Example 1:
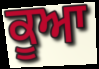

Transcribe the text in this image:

ਕੂਆ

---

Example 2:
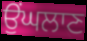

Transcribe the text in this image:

ਉਂਘਲਾਣ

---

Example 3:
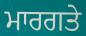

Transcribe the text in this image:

ਮਾਰਗਤੇ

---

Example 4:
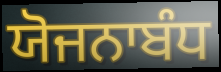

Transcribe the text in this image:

ਯੋਜਨਾਬੰਧ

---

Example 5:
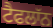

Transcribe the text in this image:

ਟੈਫਲਾੱਨ